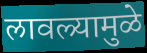
लावल्यामुळे